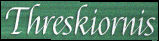
Threskiornis